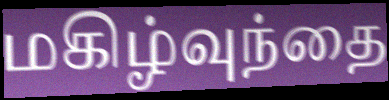
மகிழ்வுந்தை